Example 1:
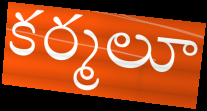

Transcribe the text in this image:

కర్మలూ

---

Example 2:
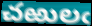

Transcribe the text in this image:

చఱులఁ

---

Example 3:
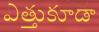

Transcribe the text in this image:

ఎత్తుకూడా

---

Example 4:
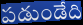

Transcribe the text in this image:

పడుండేది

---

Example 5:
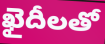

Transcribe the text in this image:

ఖైదీలతో